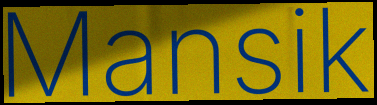
Mansik